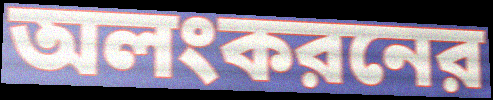
অলংকরনের